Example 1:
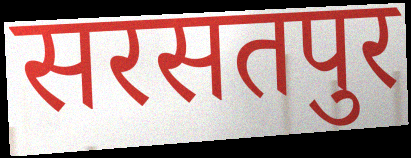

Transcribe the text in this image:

सरसतपुर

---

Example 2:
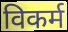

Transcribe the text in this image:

विकर्म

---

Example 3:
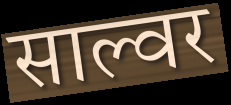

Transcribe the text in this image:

साल्वर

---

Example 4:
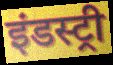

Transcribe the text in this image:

इंडस्‍ट्री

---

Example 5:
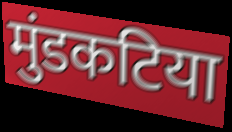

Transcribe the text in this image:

मुंडकटिया